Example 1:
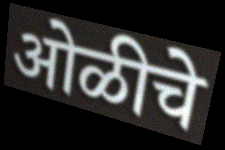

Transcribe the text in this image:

ओळीचे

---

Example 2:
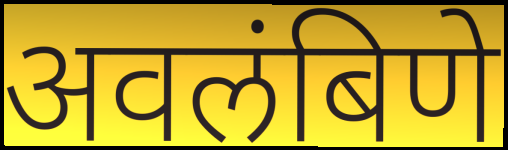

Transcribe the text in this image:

अवलंबिणे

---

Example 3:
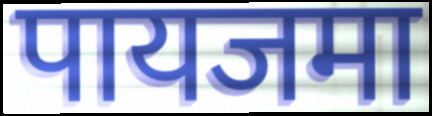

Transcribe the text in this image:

पायजमा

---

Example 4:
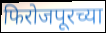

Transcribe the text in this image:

फिरोजपूरच्या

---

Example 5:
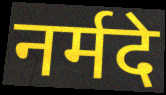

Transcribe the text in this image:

नर्मदे